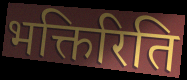
भक्तिरिति